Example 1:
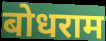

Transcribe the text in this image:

बोधराम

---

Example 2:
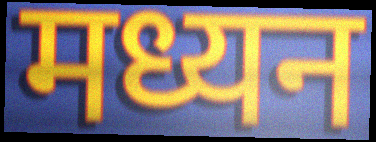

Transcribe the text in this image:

मध्यन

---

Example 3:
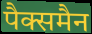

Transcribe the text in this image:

पैक्समैन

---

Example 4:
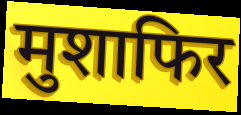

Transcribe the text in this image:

मुशाफिर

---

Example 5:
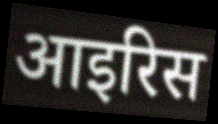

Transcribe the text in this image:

आइरिस